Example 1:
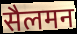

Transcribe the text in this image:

सैलमन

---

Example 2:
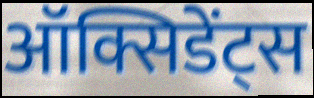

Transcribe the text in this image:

ऑक्सिडेंट्स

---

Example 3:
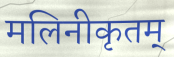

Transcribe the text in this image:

मलिनीकृतम्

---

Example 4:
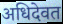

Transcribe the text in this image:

अधिदेवत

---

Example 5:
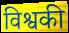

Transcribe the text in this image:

विश्वकी